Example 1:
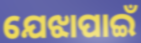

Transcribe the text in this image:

ଯେଝାପାଇଁ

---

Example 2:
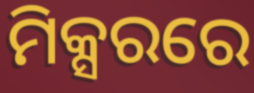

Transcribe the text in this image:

ମିକ୍ସରରେ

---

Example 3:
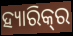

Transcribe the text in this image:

ହ୍ୟାରିକ୍‌ର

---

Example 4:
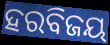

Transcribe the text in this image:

ହରବିଜୟ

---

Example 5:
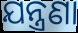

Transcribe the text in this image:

ଯନ୍ତ୍ରଣା